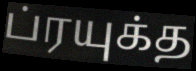
ப்ரயுக்த